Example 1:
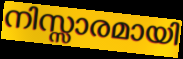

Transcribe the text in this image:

നിസ്സാരമായി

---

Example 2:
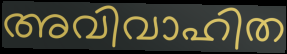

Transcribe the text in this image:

അവിവാഹിത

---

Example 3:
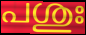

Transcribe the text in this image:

പശുഃ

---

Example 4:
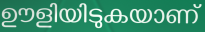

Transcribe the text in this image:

ഊളിയിടുകയാണ്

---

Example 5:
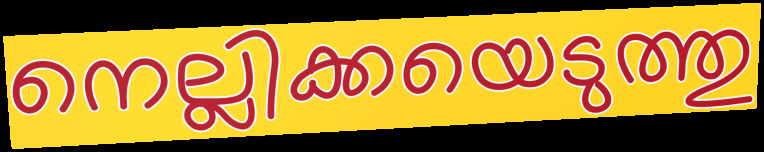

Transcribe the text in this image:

നെല്ലിക്കയെടുത്തു